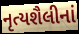
નૃત્યશૈલીનાં